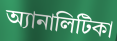
অ্যানালিটিকা